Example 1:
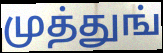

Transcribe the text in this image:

முத்துங்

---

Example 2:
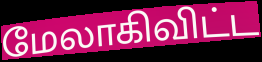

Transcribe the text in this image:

மேலாகிவிட்ட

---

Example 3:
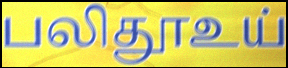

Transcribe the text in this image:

பலிதூஉய்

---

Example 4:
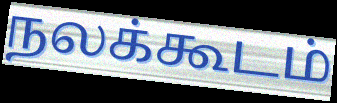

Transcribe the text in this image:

நலக்கூடம்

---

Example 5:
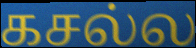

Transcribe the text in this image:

கசல்ல